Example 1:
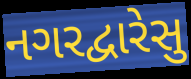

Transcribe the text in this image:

નગરદ્વારેસુ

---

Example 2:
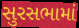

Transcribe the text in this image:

સુરસભામાં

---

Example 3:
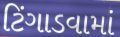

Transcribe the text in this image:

ટિંગાડવામાં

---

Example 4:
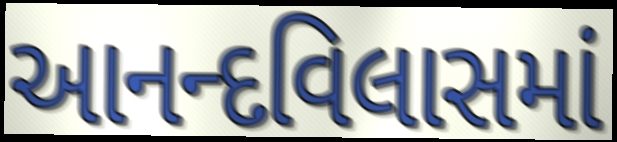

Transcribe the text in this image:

આનન્દવિલાસમાં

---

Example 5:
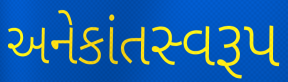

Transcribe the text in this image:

અનેકાંતસ્વરૂપ